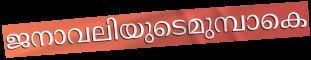
ജനാവലിയുടെമുമ്പാകെ